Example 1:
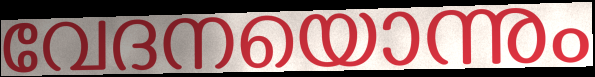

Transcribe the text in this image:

വേദനയൊന്നും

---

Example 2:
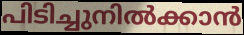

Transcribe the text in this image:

പിടിച്ചുനിൽക്കാൻ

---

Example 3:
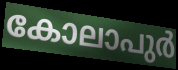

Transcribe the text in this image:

കോലാപുർ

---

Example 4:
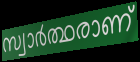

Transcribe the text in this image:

സ്വാർത്ഥരാണ്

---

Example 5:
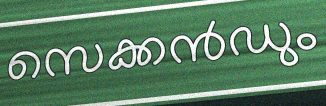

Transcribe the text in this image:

സെക്കൻഡും